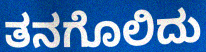
ತನಗೊಲಿದು